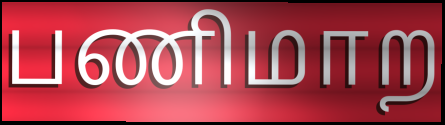
பணிமாற